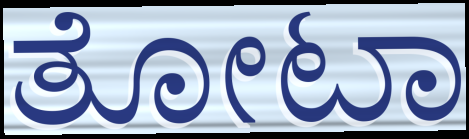
ತೋಟಾ